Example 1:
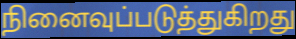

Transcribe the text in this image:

நினைவுப்படுத்துகிறது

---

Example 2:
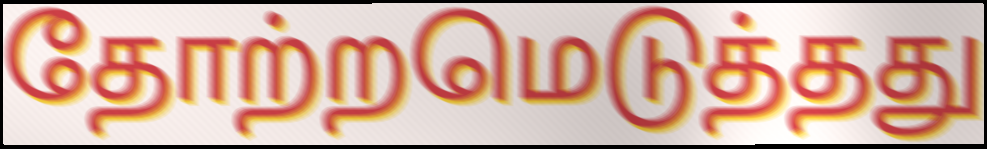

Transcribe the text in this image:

தோற்றமெடுத்தது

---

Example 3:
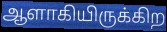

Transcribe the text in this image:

ஆளாகியிருக்கிற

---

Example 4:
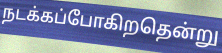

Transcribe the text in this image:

நடக்கப்போகிறதென்று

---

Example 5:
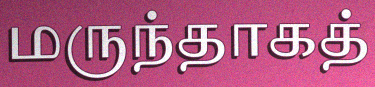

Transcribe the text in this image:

மருந்தாகத்